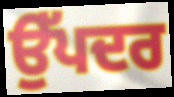
ਉੱਪਦਰ